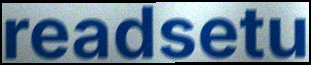
readsetu